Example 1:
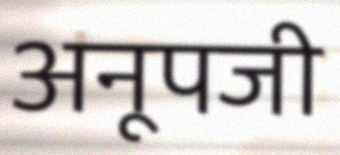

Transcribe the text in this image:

अनूपजी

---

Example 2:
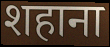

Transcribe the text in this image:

शहाना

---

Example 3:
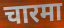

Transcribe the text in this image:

चारमा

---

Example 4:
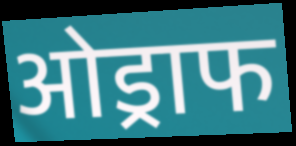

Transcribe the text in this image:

ओड्राफ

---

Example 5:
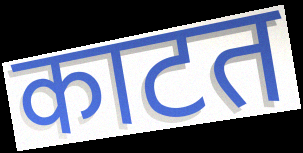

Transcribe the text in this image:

काटत